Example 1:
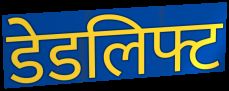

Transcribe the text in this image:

डेडलिफ्ट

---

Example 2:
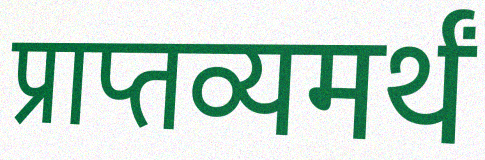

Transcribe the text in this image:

प्राप्तव्यमर्थं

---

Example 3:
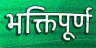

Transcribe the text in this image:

भक्तिपूर्ण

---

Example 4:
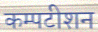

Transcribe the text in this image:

कम्पटीशन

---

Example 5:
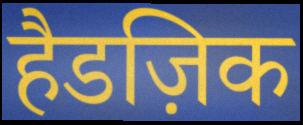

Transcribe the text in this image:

हैडज़िक